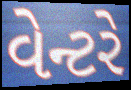
વેન્ટરે